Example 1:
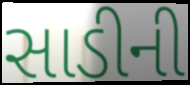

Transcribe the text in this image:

સાડીની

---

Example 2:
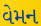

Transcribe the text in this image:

વેમન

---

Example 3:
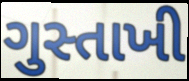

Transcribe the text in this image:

ગુસ્તાખી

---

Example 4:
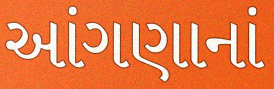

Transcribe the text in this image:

આંગણાનાં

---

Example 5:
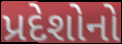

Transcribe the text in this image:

પ્રદેશોનો